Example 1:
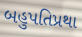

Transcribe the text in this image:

બહુપતિપ્રથા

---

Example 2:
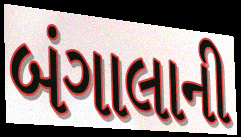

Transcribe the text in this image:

બંગાલાની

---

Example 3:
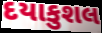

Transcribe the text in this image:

દયાકુશલ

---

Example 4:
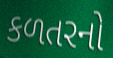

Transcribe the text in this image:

કળતરનો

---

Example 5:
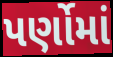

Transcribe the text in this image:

પર્ણોમાં